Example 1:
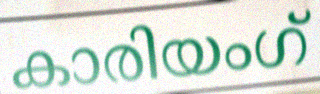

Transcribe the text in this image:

കാരിയംഗ്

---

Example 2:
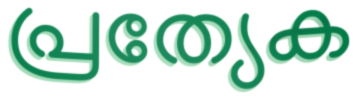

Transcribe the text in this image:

പ്രത്യേക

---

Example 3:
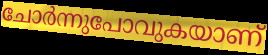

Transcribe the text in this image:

ചോർന്നുപോവുകയാണ്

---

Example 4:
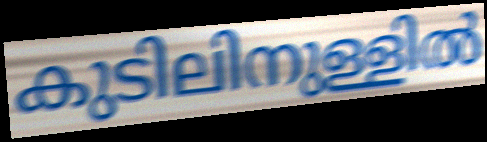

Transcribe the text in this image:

കുടിലിനുള്ളിൽ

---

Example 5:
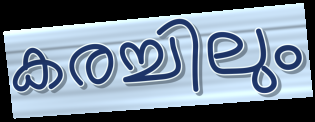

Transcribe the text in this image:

കരച്ചിലും